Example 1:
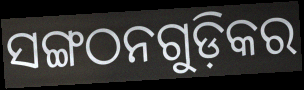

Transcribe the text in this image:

ସଙ୍ଗଠନଗୁଡ଼ିକର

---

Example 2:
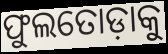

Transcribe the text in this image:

ଫୁଲତୋଡ଼ାକୁ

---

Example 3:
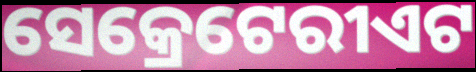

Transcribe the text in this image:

ସେକ୍ରେଟେରୀଏଟ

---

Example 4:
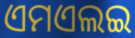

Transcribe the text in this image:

ଏମଏଲଇ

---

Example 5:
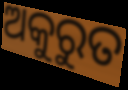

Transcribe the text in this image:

ଅକୁରୁତ